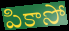
పికాసో